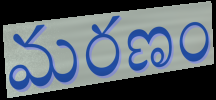
మరణం